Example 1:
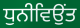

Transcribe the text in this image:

ਧੁਨੀਵਿਉਂਤ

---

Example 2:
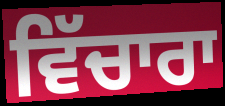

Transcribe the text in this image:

ਵਿੱਚਾਰਾ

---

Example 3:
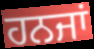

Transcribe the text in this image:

ਹਨਜਾਂ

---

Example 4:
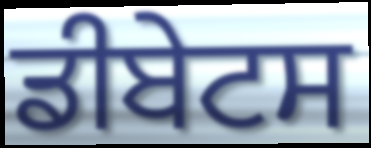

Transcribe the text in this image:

ਡੀਬੇਟਸ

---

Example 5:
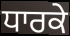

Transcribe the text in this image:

ਧਾਰਕੇ